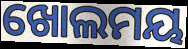
ଖୋଲମୟ